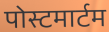
पोस्‍टमार्टम